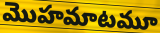
మొహమాటమూ